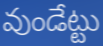
వుండేట్టు